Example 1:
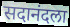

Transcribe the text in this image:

सदानंदला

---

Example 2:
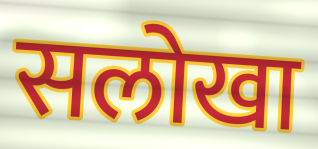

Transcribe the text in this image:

सलोखा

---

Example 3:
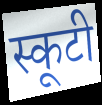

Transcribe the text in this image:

स्कूटी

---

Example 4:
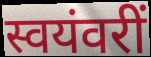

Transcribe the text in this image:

स्वयंवरीं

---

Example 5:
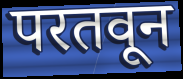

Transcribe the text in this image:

परतवून